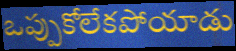
ఒప్పుకోలేకపోయాడు